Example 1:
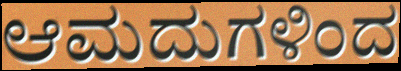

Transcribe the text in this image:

ಆಮದುಗಳಿಂದ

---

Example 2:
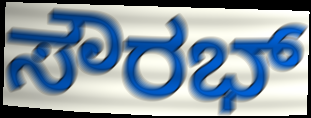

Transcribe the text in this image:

ಸೌರಭ್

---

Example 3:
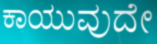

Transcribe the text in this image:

ಕಾಯುವುದೇ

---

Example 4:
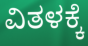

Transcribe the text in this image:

ವಿತಳಕ್ಕೆ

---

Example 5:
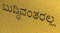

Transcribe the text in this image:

ಬುದ್ಧಿವಂತರಲ್ಲ